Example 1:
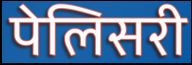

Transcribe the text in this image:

पेलिसरी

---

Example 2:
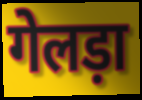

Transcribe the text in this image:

गेलड़ा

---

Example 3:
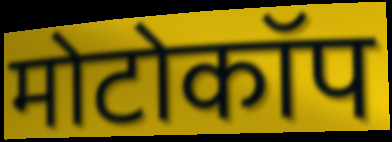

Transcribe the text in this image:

मोटोकॉप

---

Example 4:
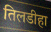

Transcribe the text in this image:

तिलडीहा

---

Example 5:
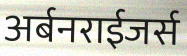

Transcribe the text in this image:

अर्बनराईजर्स